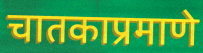
चातकाप्रमाणे